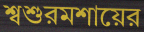
শ্বশুরমশায়ের